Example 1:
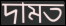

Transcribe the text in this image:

দামত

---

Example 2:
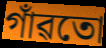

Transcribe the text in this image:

গাঁৱতো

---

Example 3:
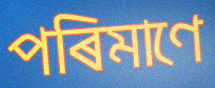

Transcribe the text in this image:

পৰিমাণে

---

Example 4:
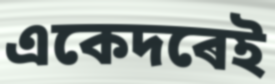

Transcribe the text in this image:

একেদৰেই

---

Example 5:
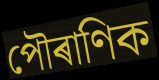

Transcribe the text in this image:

পৌৰাণিক